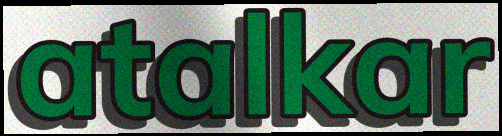
atalkar